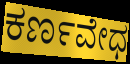
ಕರ್ಣವೇಧ